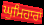
ਘੁਮਿਹਾਰਾਂ